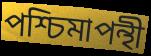
পশ্চিমাপন্থী